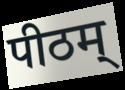
पीठम्